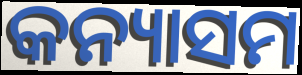
କନ୍ୟାସମ